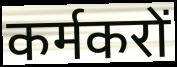
कर्मकरों